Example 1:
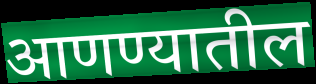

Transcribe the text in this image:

आणण्यातील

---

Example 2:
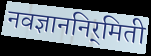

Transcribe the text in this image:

नवज्ञाननिर्मिती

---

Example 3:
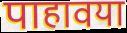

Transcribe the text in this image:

पाहावया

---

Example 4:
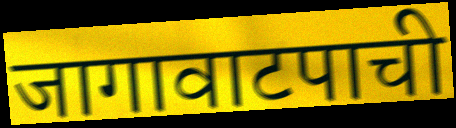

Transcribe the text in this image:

जागावाटपाची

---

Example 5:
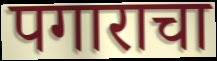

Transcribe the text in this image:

पगाराचा